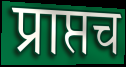
प्राप्तच